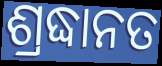
ଶ୍ରଦ୍ଧାନତ